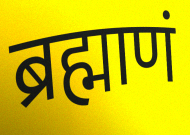
ब्रह्माणं